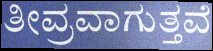
ತೀವ್ರವಾಗುತ್ತವೆ